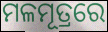
ମଳମୂତ୍ରରେ